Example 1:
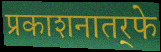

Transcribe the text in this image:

प्रकाशनातर्फे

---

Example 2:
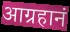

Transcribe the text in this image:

आग्रहानं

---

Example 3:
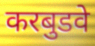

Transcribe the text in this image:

करबुडवे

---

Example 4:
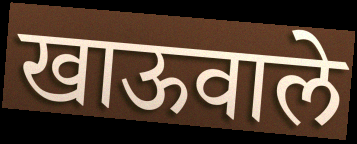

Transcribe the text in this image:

खाऊवाले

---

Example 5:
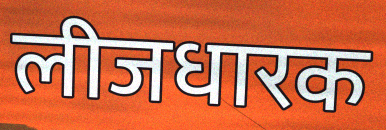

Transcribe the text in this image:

लीजधारक